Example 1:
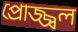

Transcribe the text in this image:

প্ৰোজ্জ্বল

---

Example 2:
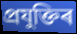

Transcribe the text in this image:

প্ৰযুক্তিৰ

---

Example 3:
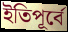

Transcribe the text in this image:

ইতিপূৰ্বে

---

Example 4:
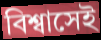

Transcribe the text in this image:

বিশ্বাসেই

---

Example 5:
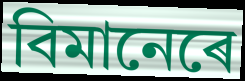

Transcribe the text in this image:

বিমানেৰে